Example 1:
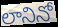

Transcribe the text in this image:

లానినో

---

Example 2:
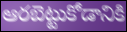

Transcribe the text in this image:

ఆరబెట్టుకోడానికి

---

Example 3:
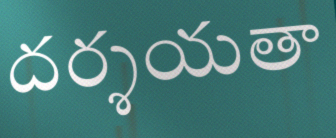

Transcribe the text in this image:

దర్శయతా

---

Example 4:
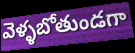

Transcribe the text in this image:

వెళ్ళబోతుండగా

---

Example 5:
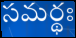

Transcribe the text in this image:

సమర్థః